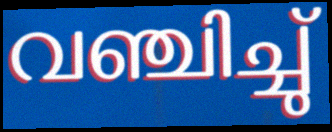
വഞ്ചിച്ചു്